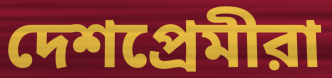
দেশপ্রেমীরা